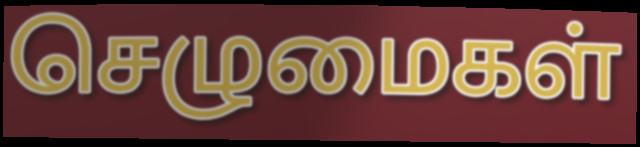
செழுமைகள்